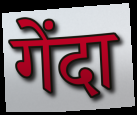
गेंदा